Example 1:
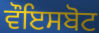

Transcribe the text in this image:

ਵੌਇਸਬੋਟ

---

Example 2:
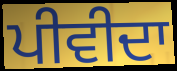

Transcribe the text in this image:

ਪੀਵੀਦਾ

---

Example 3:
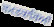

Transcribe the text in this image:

ਚਮਤਕਾਰਿਆਂ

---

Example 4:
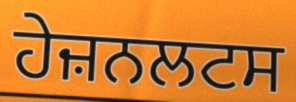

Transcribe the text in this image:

ਹੇਜ਼ਨਲਟਸ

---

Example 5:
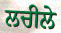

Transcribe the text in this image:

ਲਚੀਲੇ